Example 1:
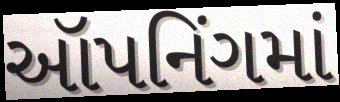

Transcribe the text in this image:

ઑપનિંગમાં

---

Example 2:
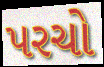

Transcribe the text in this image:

પરચો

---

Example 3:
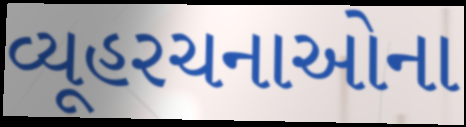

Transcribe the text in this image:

વ્યૂહરચનાઓના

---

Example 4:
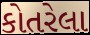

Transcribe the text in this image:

કોતરેલા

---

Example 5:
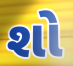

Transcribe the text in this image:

શો